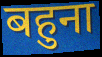
बहुना